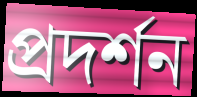
প্ৰদৰ্শন